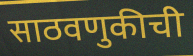
साठवणुकीची